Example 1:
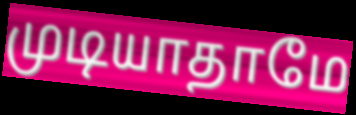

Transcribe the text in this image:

முடியாதாமே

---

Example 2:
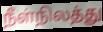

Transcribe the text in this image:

நீள்நிலத்து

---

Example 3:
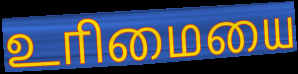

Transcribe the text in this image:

உரிமையை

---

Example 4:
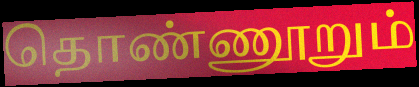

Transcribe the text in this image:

தொண்ணூறும்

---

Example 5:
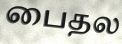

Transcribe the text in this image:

பைதல